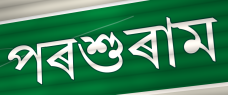
পৰশুৰাম